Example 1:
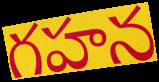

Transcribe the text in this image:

గహన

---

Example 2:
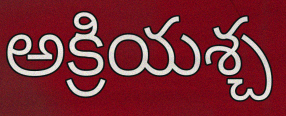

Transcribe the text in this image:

అక్రియశ్చ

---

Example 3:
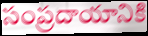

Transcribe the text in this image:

సంప్రదాయానికి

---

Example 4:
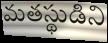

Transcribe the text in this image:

మతస్థుడిని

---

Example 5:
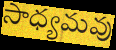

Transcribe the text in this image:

సాధ్యమవు